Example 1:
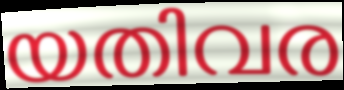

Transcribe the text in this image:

യതിവര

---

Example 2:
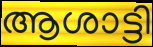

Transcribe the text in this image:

ആശാട്ടി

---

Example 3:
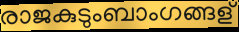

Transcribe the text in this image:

രാജകുടുംബാംഗങ്ങള്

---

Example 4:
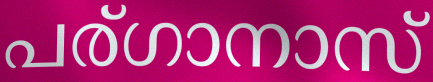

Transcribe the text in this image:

പര്ഗാനാസ്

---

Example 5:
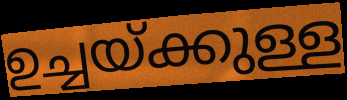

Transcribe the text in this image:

ഉച്ചയ്ക്കുള്ള